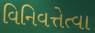
વિનિવત્તેત્વા